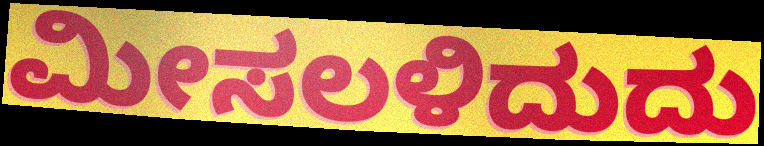
ಮೀಸಲಳಿದುದು